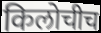
किलोचीच